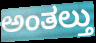
ಅಂತಲ್ತು